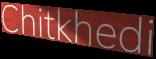
Chitkhedi